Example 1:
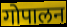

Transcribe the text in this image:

गोपालन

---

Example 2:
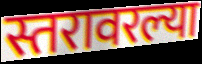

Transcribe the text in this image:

स्तरावरल्या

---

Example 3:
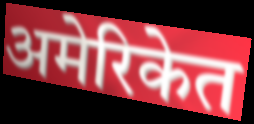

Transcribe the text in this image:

अमेरिकेत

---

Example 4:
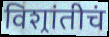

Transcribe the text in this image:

विश्रांतीचं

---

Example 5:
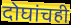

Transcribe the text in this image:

दोघांचही